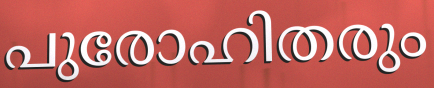
പുരോഹിതരും